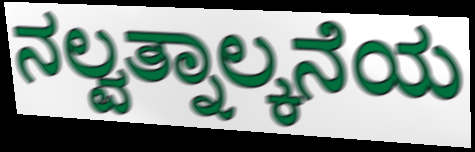
ನಲ್ವತ್ನಾಲ್ಕನೆಯ